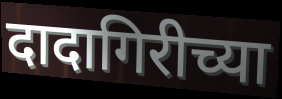
दादागिरीच्या